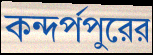
কন্দর্পপুরের